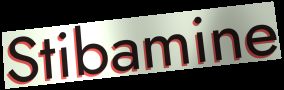
Stibamine